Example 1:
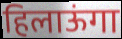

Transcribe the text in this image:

हिलाऊंगा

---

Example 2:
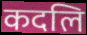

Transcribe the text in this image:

कदलि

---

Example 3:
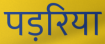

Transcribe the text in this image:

पड़रिया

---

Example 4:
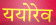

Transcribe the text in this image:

ययोरेव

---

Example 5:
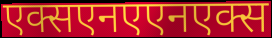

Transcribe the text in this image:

एक्सएनएएनएक्स